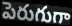
పెరుగుగా